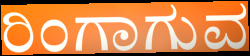
ರಿಂಗಾಗುವ